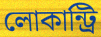
লোকান্ট্রি